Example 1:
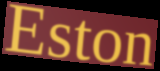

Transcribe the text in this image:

Eston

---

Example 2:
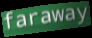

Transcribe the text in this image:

faraway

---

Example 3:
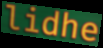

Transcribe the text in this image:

lidhe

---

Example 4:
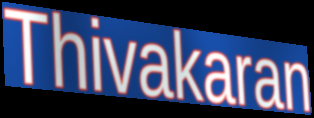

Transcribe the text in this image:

Thivakaran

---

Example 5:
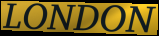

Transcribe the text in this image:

LONDON